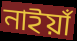
নাইয়াঁ